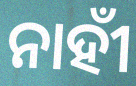
ନାହୀଁ